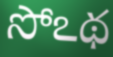
సోఽథ